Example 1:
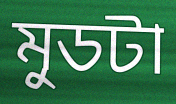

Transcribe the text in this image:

মুডটা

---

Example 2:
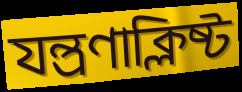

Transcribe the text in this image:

যন্ত্রণাক্লিষ্ট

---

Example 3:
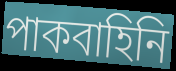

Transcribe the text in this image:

পাকবাহিনি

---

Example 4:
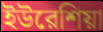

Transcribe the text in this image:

ইউরেশিয়া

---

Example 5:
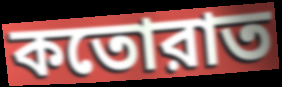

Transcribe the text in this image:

কতোরাত